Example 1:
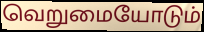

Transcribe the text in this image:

வெறுமையோடும்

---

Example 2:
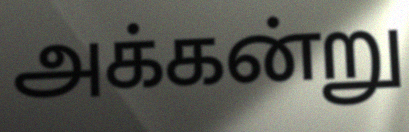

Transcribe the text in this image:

அக்கன்று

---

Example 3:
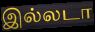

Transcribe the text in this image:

இல்லடா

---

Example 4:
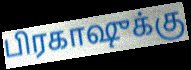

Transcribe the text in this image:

பிரகாஷுக்கு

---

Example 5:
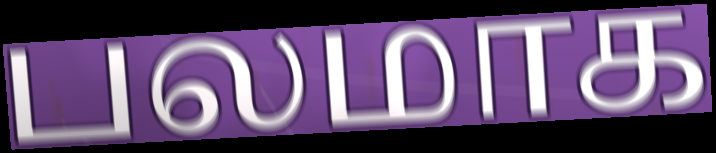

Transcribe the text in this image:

பலமாக